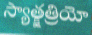
స్యాత్క్షత్రియో